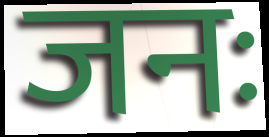
जनः